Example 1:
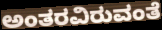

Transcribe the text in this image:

ಅಂತರವಿರುವಂತೆ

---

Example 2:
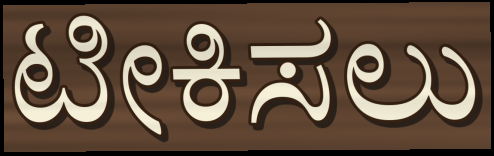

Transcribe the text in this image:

ಟೀಕಿಸಲು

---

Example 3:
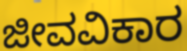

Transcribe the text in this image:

ಜೀವವಿಕಾರ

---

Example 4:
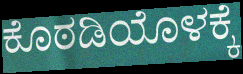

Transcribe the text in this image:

ಕೊಠಡಿಯೊಳಕ್ಕೆ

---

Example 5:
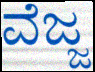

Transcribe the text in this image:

ವೆಜ್ಜ